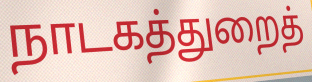
நாடகத்துறைத்